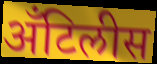
अँटिलीस